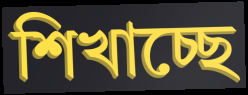
শিখাচ্ছে